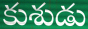
కుశుడు